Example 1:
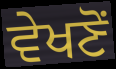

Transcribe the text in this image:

ਵੇਖਣੋਂ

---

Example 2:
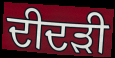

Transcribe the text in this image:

ਦੀਦੜੀ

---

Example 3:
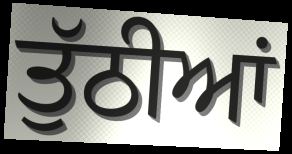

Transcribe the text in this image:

ਤੁੱਠੀਆਂ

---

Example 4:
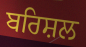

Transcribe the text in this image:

ਬਰਿਸ਼ਲ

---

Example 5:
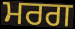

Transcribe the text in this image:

ਮਰਗ